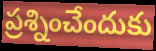
ప్రశ్నించేందుకు